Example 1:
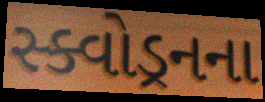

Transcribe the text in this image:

સ્ક્વોડ્રનના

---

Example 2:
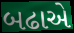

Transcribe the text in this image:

બઢાએ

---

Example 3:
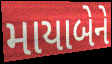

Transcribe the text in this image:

માયાબેને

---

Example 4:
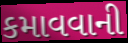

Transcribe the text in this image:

કમાવવાની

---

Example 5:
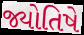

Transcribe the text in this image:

જ્યોતિષે